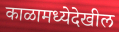
काळामध्येदेखील